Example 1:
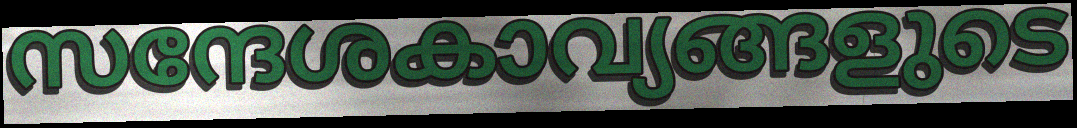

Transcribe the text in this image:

സന്ദേശകാവ്യങ്ങളുടെ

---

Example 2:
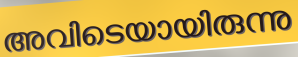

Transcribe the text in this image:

അവിടെയായിരുന്നു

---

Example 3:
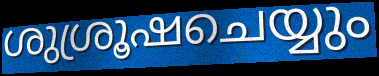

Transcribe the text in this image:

ശുശ്രൂഷചെയ്യും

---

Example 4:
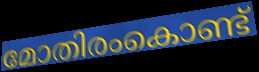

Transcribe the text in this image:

മോതിരംകൊണ്ട്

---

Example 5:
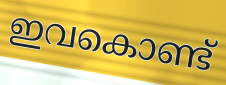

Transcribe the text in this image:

ഇവകൊണ്ട്